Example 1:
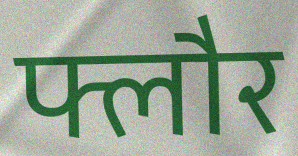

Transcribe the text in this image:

फ्लौर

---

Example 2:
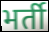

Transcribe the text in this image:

भर्ती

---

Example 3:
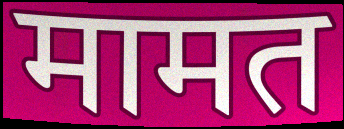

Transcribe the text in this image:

मामत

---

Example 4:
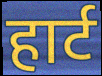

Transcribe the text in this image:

हार्ट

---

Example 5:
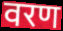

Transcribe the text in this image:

वरण